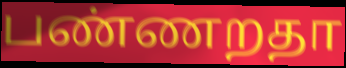
பண்ணறதா